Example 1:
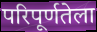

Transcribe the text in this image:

परिपूर्णतेला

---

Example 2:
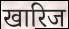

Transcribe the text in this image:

खारिज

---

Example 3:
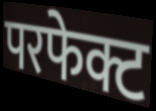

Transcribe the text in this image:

परफेक्ट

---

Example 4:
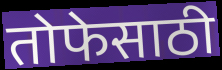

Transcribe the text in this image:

तोफेसाठी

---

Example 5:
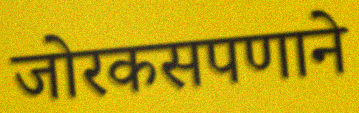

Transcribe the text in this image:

जोरकसपणाने